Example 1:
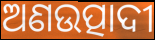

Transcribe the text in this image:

ଅଣଉତ୍ପାଦୀ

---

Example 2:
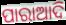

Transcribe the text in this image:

ପାରାଆଦି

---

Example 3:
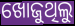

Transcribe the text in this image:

ଖୋଜୁଥିଲୁ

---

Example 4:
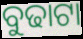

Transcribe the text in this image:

ବୁଢାଟା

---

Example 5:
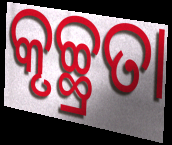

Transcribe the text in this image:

କୃଚ୍ଛ୍ରତା